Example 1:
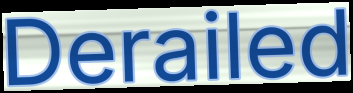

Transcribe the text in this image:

Derailed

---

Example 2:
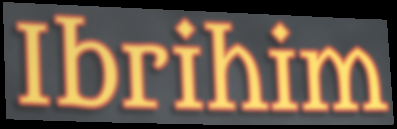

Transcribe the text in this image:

Ibrihim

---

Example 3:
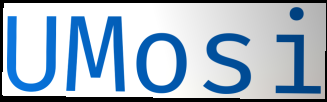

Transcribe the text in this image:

UMosi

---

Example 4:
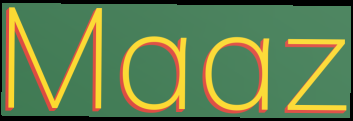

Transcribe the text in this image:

Maaz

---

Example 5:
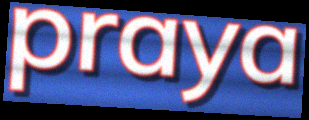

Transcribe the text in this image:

praya